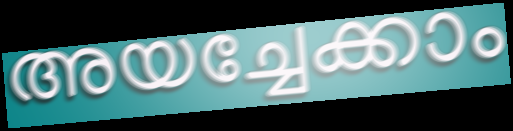
അയച്ചേക്കാം